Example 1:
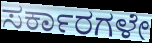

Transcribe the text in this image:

ಸರ್ಕಾರಗಳೇ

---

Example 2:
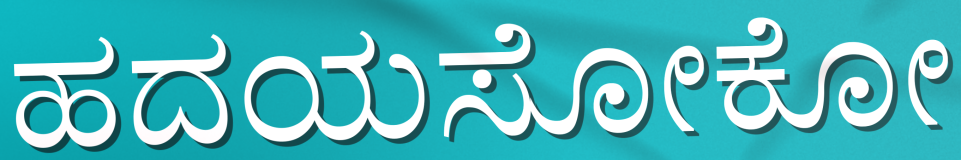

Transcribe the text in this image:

ಹದಯಸೋಕೋ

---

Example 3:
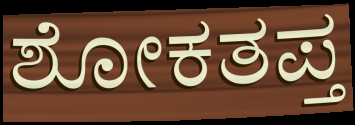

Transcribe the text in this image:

ಶೋಕತಪ್ತ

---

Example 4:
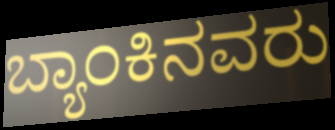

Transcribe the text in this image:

ಬ್ಯಾಂಕಿನವರು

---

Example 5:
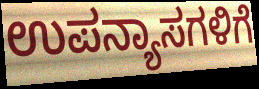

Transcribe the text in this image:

ಉಪನ್ಯಾಸಗಳಿಗೆ